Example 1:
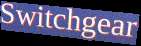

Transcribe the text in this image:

Switchgear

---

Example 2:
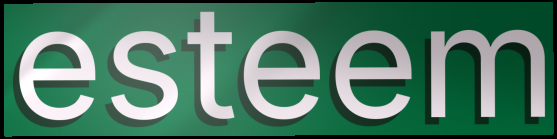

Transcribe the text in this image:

esteem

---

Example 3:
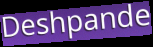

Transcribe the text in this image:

Deshpande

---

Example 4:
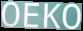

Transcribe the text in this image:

OEKO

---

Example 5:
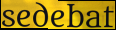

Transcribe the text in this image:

sedebat